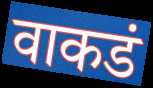
वाकडं